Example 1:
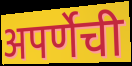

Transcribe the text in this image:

अपर्णेची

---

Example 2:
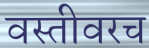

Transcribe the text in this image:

वस्तीवरच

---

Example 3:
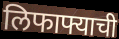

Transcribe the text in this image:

लिफाफ्याची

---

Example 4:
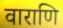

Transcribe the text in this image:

वाराणि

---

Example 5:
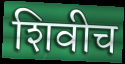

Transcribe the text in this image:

शिवीच